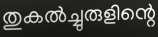
തുകൽച്ചുരുളിന്റെ